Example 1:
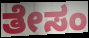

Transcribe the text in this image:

ತೇಸಂ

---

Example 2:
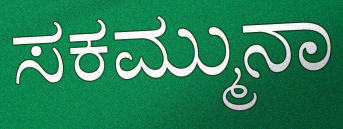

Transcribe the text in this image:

ಸಕಮ್ಮುನಾ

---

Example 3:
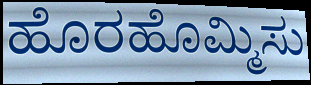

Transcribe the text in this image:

ಹೊರಹೊಮ್ಮಿಸು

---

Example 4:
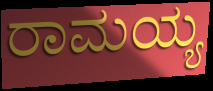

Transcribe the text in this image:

ರಾಮಯ್ಯ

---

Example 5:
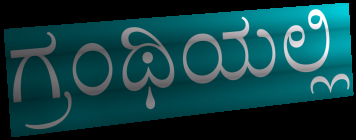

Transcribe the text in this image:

ಗ್ರಂಥಿಯಲ್ಲಿ